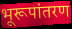
भूरूपांतरण